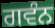
ਗਵੰਨ